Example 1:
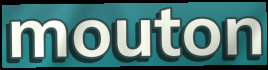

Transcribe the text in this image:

mouton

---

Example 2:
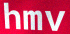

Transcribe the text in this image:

hmv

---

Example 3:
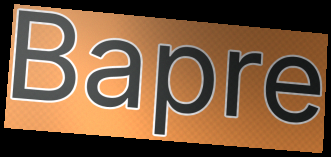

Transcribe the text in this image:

Bapre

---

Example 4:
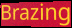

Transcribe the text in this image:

Brazing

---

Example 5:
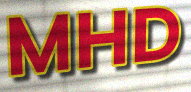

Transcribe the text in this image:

MHD